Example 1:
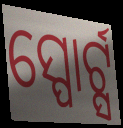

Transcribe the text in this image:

ସ୍ପୋର୍ଟ୍ସ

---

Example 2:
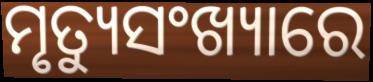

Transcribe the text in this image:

ମୃତ୍ୟୁସଂଖ୍ୟାରେ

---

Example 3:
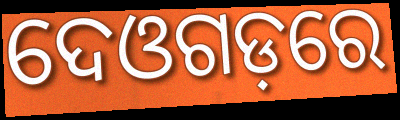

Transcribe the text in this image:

ଦେଓଗଡ଼ରେ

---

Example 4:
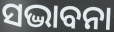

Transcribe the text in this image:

ସଦ୍ଭାବନା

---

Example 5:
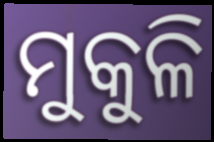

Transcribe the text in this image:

ମୁକୁଳି